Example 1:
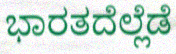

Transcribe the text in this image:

ಭಾರತದೆಲ್ಲೆಡೆ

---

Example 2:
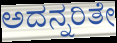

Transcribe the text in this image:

ಅದನ್ನರಿತೇ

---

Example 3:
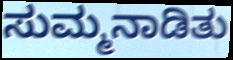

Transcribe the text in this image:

ಸುಮ್ಮನಾಡಿತು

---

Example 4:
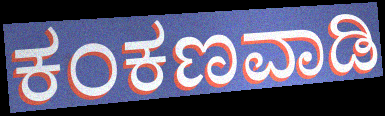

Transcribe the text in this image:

ಕಂಕಣವಾಡಿ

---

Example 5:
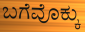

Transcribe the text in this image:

ಬಗೆವೊಕ್ಕು